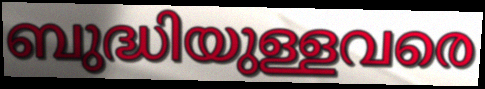
ബുദ്ധിയുള്ളവരെ